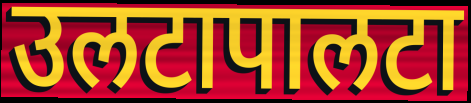
उलटापालटा